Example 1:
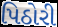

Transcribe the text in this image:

પિઠોરી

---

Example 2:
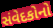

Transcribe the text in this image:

સંવેદકોનો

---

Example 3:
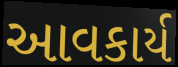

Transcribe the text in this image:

આવકાર્ય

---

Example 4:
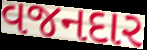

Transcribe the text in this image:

વજનદાર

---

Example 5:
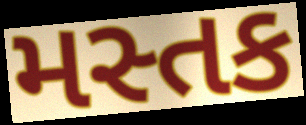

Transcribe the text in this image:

મસ્તક